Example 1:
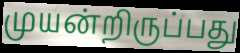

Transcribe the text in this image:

முயன்றிருப்பது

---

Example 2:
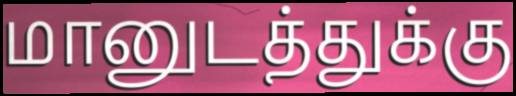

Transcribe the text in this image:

மானுடத்துக்கு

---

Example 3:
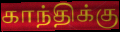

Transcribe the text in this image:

காந்திக்கு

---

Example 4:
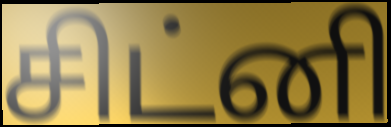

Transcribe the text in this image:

சிட்னி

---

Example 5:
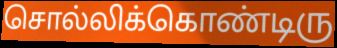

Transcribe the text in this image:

சொல்லிக்கொண்டிரு